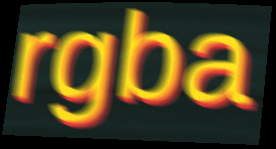
rgba